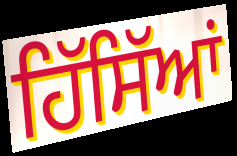
ਹਿੱਸਿੱਆਂ